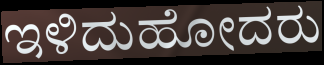
ಇಳಿದುಹೋದರು